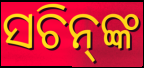
ସଚିନ୍‌ଙ୍କ